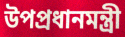
উপপ্রধানমন্ত্রী